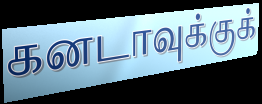
கனடாவுக்குக்